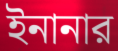
ইনানার